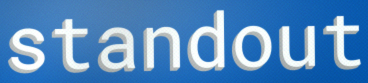
standout